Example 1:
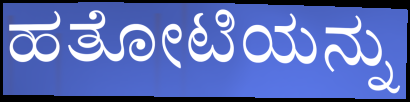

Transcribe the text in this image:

ಹತೋಟಿಯನ್ನು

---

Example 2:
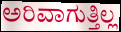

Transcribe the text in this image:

ಅರಿವಾಗುತ್ತಿಲ್ಲ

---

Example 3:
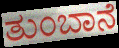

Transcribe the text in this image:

ತುಂಬಾನೆ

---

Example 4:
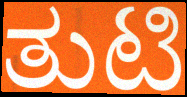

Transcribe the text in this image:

ತುಟಿ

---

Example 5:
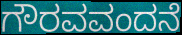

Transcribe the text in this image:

ಗೌರವವಂದನೆ